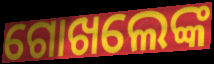
ଗୋଖଲେଙ୍କ